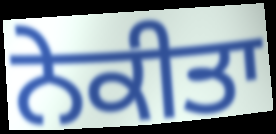
ਨੇਕੀਤਾ